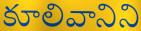
కూలివానిని